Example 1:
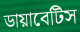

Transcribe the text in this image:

ডায়াবেটিস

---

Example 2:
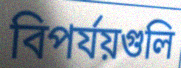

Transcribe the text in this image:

বিপর্যয়গুলি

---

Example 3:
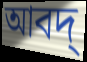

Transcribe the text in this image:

আবদ্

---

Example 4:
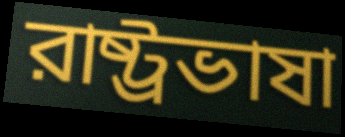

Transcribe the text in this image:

রাষ্ট্রভাষা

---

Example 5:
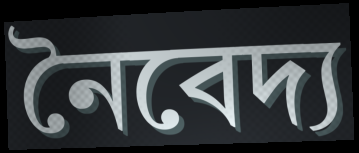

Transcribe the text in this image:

নৈবেদ্য